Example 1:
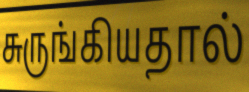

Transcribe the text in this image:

சுருங்கியதால்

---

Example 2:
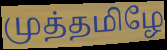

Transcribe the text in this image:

முத்தமிழே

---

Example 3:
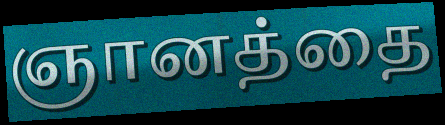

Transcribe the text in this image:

ஞானத்தை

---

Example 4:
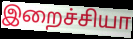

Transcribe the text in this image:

இறைச்சியா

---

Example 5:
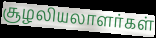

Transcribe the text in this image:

சூழலியலாளர்கள்